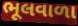
ભૂલવાળા